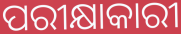
ପରୀକ୍ଷାକାରୀ